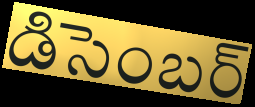
డిసెంబర్